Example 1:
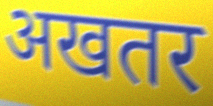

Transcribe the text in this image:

अखतर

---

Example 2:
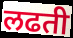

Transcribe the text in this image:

लढती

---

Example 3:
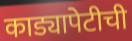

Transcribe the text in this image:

काड्यापेटीची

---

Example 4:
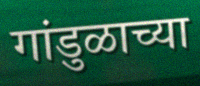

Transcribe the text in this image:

गांडुळाच्या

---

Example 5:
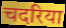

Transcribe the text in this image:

चदरिया